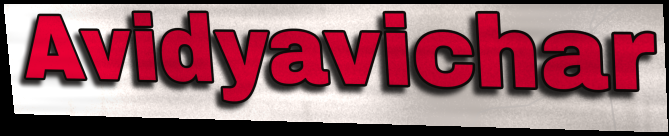
Avidyavichar